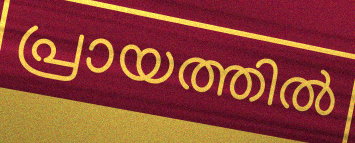
പ്രായത്തിൽ